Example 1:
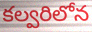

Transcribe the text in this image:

కల్వరిలోన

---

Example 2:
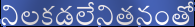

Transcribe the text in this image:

నిలకడలేనితనంతో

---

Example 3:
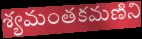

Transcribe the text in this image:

శ్యమంతకమణిని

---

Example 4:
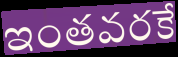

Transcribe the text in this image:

ఇంతవరకే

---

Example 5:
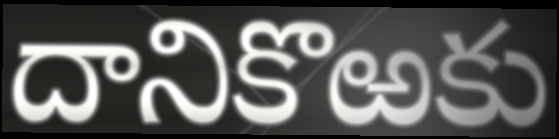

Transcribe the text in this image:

దానికొఱకు